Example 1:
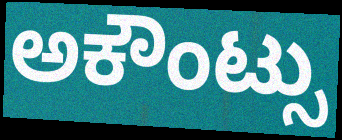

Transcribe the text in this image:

ಅಕೌಂಟ್ಸು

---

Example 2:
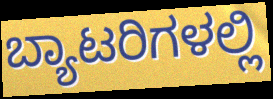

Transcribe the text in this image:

ಬ್ಯಾಟರಿಗಳಲ್ಲಿ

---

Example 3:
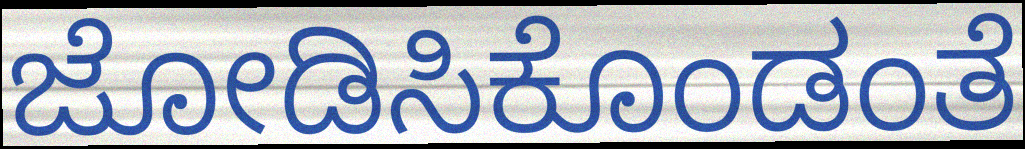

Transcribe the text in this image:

ಜೋಡಿಸಿಕೊಂಡಂತೆ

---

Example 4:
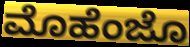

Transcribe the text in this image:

ಮೊಹೆಂಜೊ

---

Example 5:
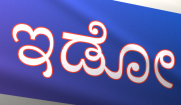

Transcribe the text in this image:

ಇಡೋ